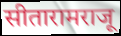
सीतारामराजू